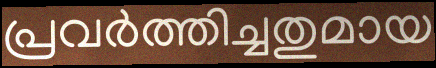
പ്രവർത്തിച്ചതുമായ